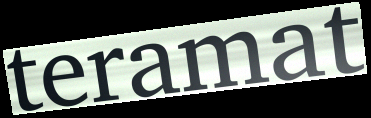
teramat